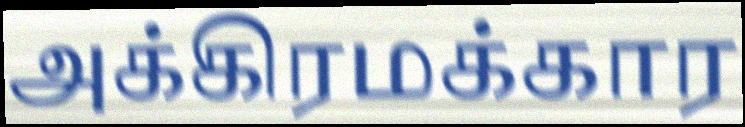
அக்கிரமக்கார